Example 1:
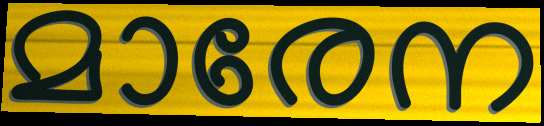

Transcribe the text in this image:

മാരേന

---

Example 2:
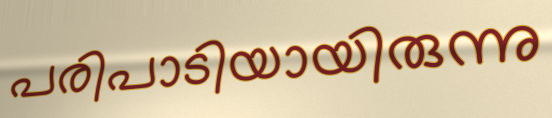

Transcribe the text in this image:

പരിപാടിയായിരുന്നു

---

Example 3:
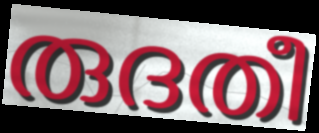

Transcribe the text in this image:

രുദതീ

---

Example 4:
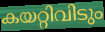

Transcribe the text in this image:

കയറ്റിവിടും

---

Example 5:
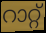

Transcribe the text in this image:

റാറ്റ്